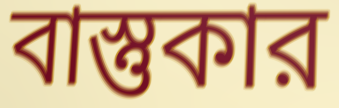
বাস্তুকার